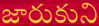
జారుకుని